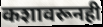
कशावरूनही